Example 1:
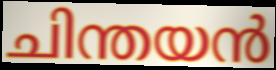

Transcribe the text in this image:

ചിന്തയൻ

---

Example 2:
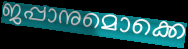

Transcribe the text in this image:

ജപ്പാനുമൊക്കെ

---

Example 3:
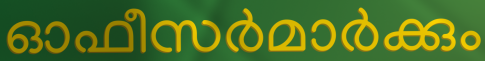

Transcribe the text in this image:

ഓഫീസർമാർക്കും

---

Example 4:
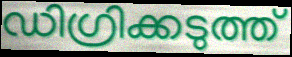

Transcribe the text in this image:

ഡിഗ്രിക്കടുത്ത്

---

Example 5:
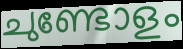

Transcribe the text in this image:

ചുണ്ടോളം